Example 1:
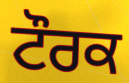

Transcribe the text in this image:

ਟੌਰਕ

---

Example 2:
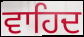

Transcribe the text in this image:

ਵਾਹਿਦ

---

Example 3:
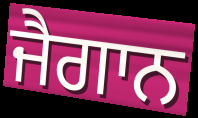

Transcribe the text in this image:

ਜੈਗਾਨ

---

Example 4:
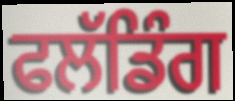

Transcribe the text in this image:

ਫਲੱਡਿੰਗ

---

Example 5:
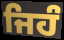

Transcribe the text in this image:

ਜਿਹੰ